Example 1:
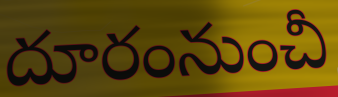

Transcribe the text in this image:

దూరంనుంచీ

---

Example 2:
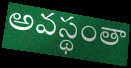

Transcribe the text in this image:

అవస్థంతా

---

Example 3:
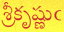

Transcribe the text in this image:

శ్రీకృష్ణుఁ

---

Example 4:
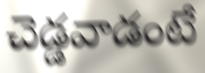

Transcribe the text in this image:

చెడ్డవాడంటే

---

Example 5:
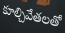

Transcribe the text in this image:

కూల్చివేతలతో